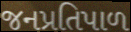
જનપ્રતિપાળ